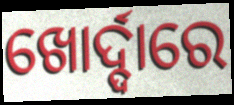
ଖୋର୍ଦ୍ଦାରେ